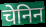
चेनिन